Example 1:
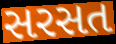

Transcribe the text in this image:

સરસત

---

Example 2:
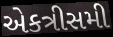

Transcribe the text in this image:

એકત્રીસમી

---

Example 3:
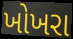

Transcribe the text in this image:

ખોખરા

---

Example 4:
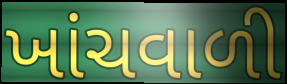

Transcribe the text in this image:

ખાંચવાળી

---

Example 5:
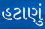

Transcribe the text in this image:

હટાણું